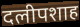
दलीपशाह